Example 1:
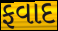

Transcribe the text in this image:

ફવાદ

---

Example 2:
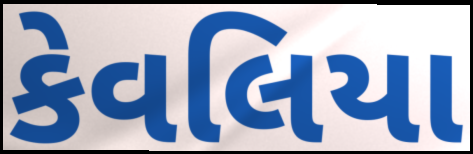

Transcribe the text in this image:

કેવલિયા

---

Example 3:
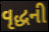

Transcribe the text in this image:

વૃદ્ધની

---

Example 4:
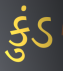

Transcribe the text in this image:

કુંડ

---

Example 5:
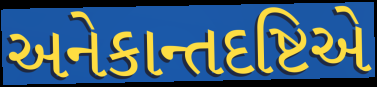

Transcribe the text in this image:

અનેકાન્તદષ્ટિએ